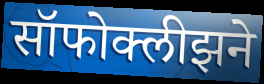
सॉफोक्लीझने